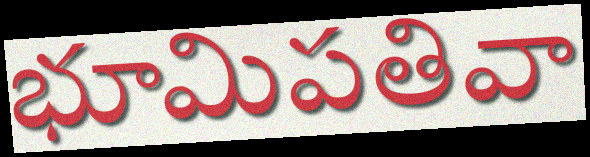
భూమిపతివా